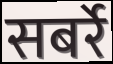
सबर्रे